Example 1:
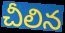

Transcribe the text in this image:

చీలిన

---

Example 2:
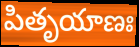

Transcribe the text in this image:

పితృయాణః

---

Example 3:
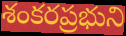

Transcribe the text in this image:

శంకరప్రభుని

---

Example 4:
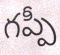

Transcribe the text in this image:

గప్పీ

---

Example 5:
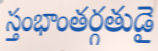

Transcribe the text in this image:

స్తంభాంతర్గతుడై